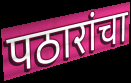
पठारांचा